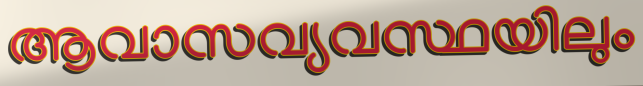
ആവാസവ്യവസ്ഥയിലും